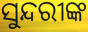
ସୁନ୍ଦରୀଙ୍କ